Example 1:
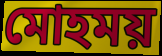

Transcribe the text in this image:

মোহময়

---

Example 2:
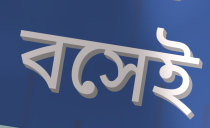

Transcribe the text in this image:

বসেই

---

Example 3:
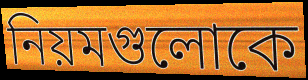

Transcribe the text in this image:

নিয়মগুলোকে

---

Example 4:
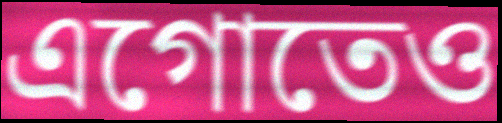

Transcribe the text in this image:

এগোতেও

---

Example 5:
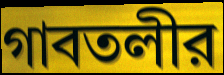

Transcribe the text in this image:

গাবতলীর